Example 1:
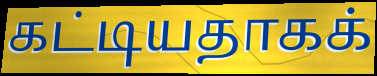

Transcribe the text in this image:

கட்டியதாகக்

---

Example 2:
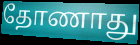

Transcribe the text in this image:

தோணாது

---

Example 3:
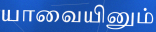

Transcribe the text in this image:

யாவையினும்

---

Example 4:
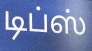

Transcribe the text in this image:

டிப்ஸ்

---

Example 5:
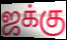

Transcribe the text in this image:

ஜக்கு